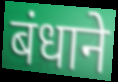
बंधाने